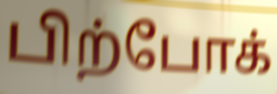
பிற்போக்